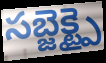
సబ్జెక్ట్పై